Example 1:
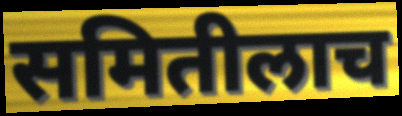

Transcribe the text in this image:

समितीलाच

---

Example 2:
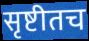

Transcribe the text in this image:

सृष्टीतच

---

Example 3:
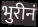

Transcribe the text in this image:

भुरीनं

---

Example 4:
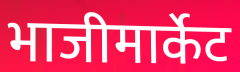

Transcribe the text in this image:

भाजीमार्केट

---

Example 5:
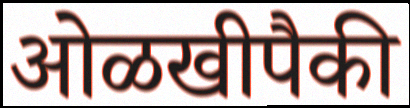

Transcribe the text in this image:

ओळखीपैकी